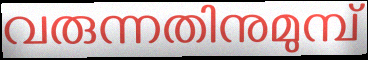
വരുന്നതിനുമുമ്പ്